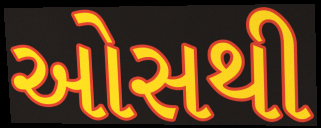
ઓસથી